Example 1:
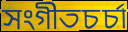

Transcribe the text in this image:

সংগীতচর্চা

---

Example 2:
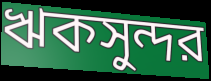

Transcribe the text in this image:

ঋকসুন্দর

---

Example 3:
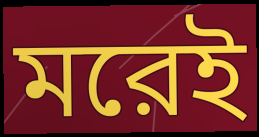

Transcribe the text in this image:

মরেই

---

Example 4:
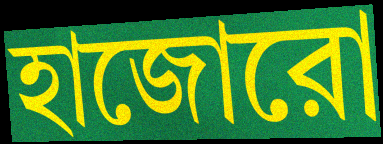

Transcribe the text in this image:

হাজোরো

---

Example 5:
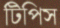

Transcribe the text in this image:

টিপিস